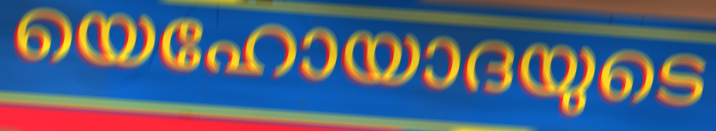
യെഹോയാദയുടെ